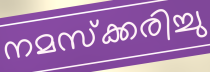
നമസ്ക്കരിച്ചു